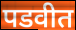
पडवीत